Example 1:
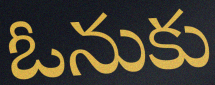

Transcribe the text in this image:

ఓనుకు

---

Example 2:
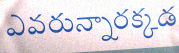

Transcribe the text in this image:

ఎవరున్నారక్కడ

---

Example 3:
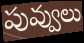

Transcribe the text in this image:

పువ్వులు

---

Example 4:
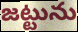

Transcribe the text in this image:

జట్టును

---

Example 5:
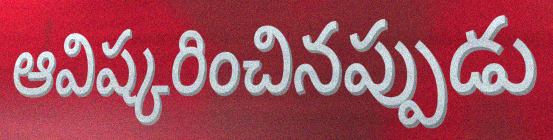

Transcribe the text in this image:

ఆవిష్కరించినప్పుడు